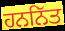
ਹਨਨਿੱਤ